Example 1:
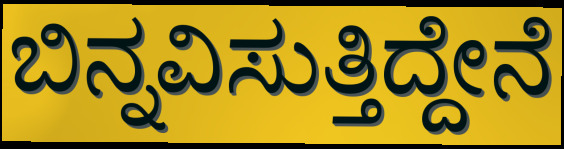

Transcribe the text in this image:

ಬಿನ್ನವಿಸುತ್ತಿದ್ದೇನೆ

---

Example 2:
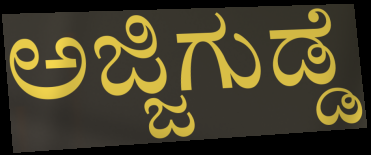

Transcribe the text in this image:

ಅಜ್ಜಿಗುಡ್ಡೆ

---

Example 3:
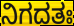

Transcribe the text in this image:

ನಿಗದತಃ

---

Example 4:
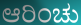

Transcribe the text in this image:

ಆರಿಂಚು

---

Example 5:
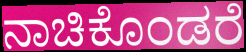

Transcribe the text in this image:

ನಾಚಿಕೊಂಡರೆ